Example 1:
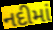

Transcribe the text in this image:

નદીમાં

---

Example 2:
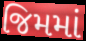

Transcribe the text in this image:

જિમમાં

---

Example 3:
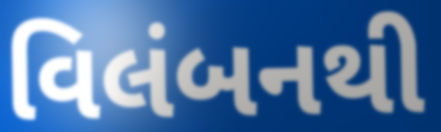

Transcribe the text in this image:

વિલંબનથી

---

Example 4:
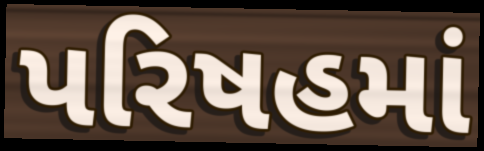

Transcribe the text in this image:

પરિષહમાં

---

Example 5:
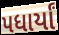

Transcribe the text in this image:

પધાર્યાં